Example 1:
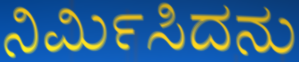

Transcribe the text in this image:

ನಿರ್ಮಿಸಿದನು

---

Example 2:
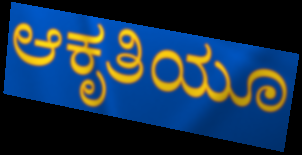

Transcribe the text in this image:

ಆಕೃತಿಯೂ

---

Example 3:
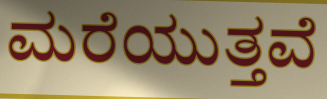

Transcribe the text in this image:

ಮರೆಯುತ್ತವೆ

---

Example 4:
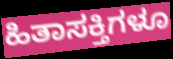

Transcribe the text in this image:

ಹಿತಾಸಕ್ತಿಗಳೂ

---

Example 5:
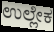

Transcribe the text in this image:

ಉಲ್ಲೇಕ